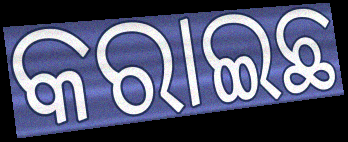
କରାଇଛ